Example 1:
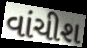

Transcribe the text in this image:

વાંચીશ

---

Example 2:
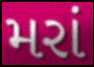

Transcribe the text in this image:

મરાં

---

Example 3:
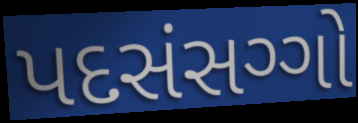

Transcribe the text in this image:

પદસંસગ્ગો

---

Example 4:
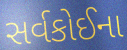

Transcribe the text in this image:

સર્વકોઈના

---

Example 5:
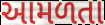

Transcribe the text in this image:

આમળતા